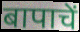
बापाचें